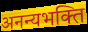
अनन्यभक्ति